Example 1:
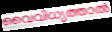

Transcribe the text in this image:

വൈവിധ്യത്താൽ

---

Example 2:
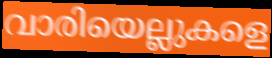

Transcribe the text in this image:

വാരിയെല്ലുകളെ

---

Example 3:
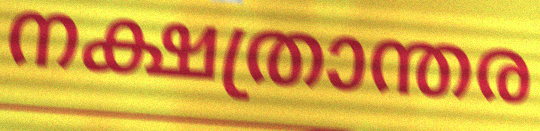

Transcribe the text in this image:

നക്ഷത്രാന്തര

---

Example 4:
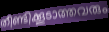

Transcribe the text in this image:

തീണ്ടിക്കൂടാത്തവരും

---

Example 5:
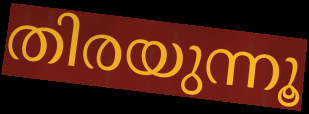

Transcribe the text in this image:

തിരയുന്നൂ